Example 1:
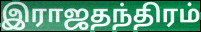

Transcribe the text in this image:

இராஜதந்திரம்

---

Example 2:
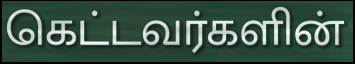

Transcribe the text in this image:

கெட்டவர்களின்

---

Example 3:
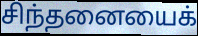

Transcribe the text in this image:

சிந்தனையைக்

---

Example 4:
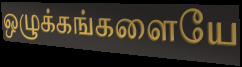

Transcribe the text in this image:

ஒழுக்கங்களையே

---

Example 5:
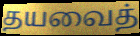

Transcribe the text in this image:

தயவைத்